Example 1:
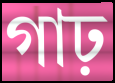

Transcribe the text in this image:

গাঢ়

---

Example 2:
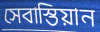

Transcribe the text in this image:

সেবাস্তিয়ান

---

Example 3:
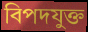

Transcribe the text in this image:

বিপদযুক্ত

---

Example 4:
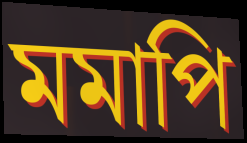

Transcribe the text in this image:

মমাপি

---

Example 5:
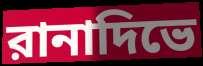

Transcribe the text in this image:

রানাদিভে